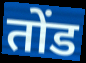
तोंड